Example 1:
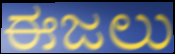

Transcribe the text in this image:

ಈಜಲು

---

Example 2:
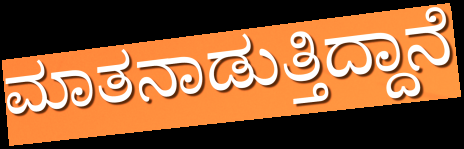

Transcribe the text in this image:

ಮಾತನಾಡುತ್ತಿದ್ದಾನೆ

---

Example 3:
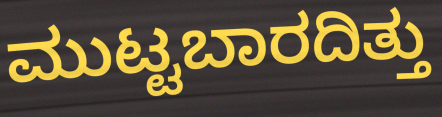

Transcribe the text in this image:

ಮುಟ್ಟಬಾರದಿತ್ತು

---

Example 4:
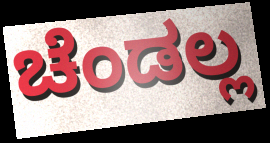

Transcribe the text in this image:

ಚೆಂಡಲ್ಲ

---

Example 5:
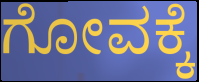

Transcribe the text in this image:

ಗೋವಕ್ಕೆ